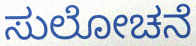
ಸುಲೋಚನೆ